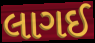
લાગઈ